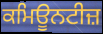
ਕਮਿਊਨਟੀਜ਼